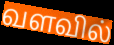
வளவில்